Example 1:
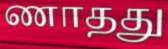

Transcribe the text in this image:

ணாதது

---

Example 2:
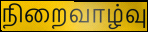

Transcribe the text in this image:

நிறைவாழ்வு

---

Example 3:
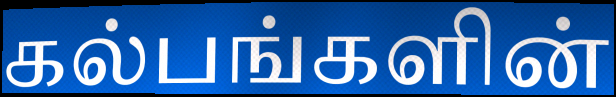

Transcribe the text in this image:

கல்பங்களின்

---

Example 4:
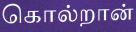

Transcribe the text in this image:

கொல்றான்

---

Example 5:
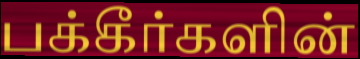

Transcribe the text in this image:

பக்கீர்களின்